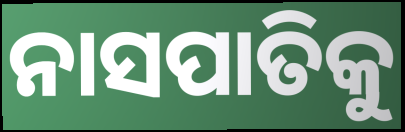
ନାସପାତିକୁ